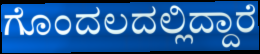
ಗೊಂದಲದಲ್ಲಿದ್ದಾರೆ